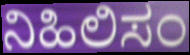
ನಿಹಿಲಿಸಂ